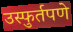
उस्फुर्तपणे